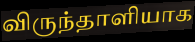
விருந்தாளியாக